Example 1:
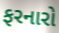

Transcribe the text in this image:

ફરનારો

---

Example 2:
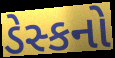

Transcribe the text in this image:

ડેસ્કનો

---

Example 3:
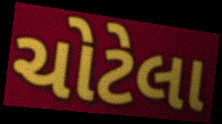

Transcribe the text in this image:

ચોટેલા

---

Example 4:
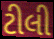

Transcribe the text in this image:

ટીલી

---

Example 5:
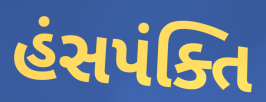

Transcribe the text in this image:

હંસપંક્તિ